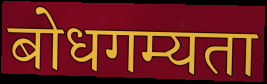
बोधगम्यता